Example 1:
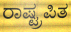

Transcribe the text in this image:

ರಾಷ್ಟ್ರಪಿತ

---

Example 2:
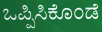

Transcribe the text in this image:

ಒಪ್ಪಿಸಿಕೊಂಡೆ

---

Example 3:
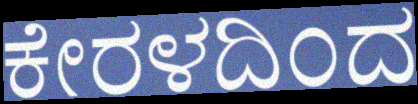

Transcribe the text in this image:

ಕೇರಳದಿಂದ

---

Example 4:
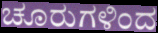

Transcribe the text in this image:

ಚೂರುಗಳಿಂದ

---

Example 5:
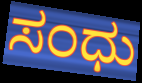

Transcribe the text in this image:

ಸಂಧು